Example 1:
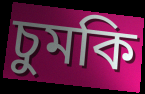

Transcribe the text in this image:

চুমকি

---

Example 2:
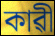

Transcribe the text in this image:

কাৱী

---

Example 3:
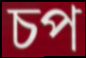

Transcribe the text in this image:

চপ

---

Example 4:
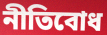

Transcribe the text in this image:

নীতিবোধ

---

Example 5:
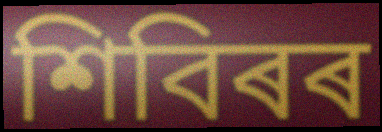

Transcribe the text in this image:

শিবিৰৰ